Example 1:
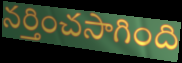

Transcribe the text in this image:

నర్తించసాగింది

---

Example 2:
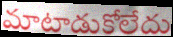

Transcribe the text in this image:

మాటాడుకోలేదు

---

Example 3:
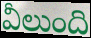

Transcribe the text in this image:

వీలుంది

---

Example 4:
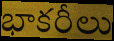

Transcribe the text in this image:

భాకరీలు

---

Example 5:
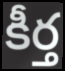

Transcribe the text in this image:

కీర్త